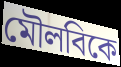
মৌলবিকে